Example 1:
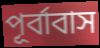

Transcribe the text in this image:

পূর্বাবাস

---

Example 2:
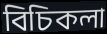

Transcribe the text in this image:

বিচিকলা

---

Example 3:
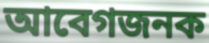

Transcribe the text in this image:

আবেগজনক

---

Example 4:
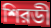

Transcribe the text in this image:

শিরডী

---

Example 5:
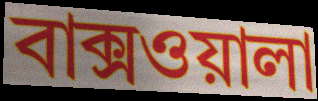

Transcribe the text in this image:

বাক্সওয়ালা